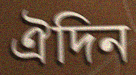
ঐদিন